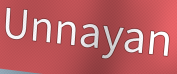
Unnayan